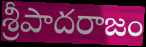
శ్రీపాదరాజం